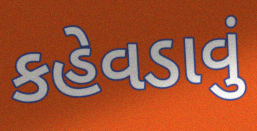
કહેવડાવું